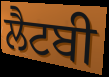
ਲੈਟਬੀ